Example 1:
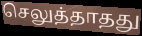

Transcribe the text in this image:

செலுத்தாதது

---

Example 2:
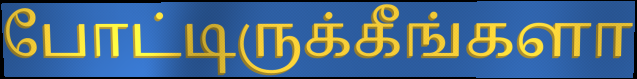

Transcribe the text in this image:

போட்டிருக்கீங்களா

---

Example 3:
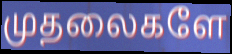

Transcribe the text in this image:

முதலைகளே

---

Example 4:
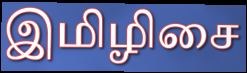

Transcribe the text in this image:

இமிழிசை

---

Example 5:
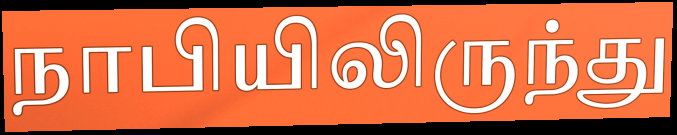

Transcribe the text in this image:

நாபியிலிருந்து